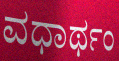
ವಧಾರ್ಥಂ